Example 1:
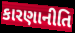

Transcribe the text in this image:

કારણાનીતિ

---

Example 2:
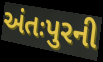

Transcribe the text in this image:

અંતઃપુરની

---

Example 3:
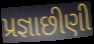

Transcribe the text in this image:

પ્રજ્ઞાછીણી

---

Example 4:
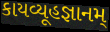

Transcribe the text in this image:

કાયવ્યૂહજ્ઞાનમ્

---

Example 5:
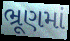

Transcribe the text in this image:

ભ્રૂણમાં